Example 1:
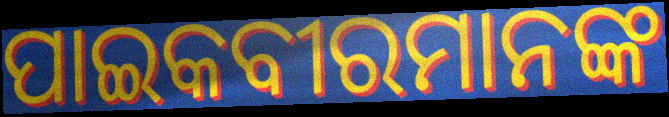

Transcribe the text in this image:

ପାଇକବୀରମାନଙ୍କ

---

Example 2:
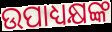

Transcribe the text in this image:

ଉପାଧ୍ୟକ୍ଷଙ୍କ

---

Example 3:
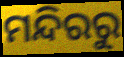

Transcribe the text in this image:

ମନ୍ଦିରରୁ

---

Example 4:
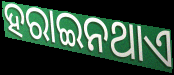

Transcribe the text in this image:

ହରାଇନଥାଏ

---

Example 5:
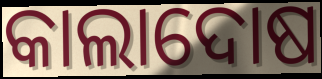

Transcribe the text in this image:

କାଲାଦୋଷ